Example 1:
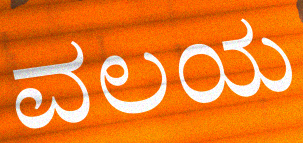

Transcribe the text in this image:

ವಲಯ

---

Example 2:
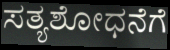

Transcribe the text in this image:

ಸತ್ಯಶೋಧನೆಗೆ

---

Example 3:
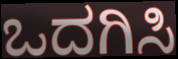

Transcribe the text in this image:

ಒದಗಿಸಿ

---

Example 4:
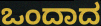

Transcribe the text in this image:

ಒಂದಾದ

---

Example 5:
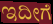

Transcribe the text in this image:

ಇದೀಗೆ